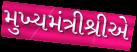
મુખ્યમંત્રીશ્રીએ